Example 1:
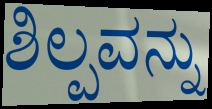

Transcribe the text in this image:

ಶಿಲ್ಪವನ್ನು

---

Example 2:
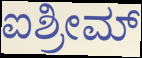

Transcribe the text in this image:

ಐಶ್ರೀಮ್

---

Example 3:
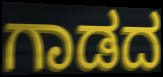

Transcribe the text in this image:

ಗಾಡದ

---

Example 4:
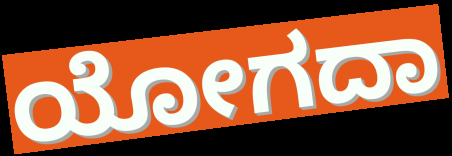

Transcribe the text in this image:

ಯೋಗದಾ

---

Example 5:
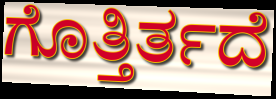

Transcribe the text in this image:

ಗೊತ್ತಿರ್ತದೆ